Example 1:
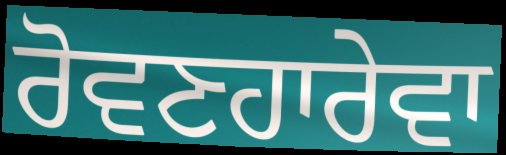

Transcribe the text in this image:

ਰੋਵਣਹਾਰੇਵਾ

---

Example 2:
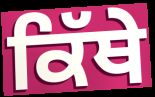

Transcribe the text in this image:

ਕਿੱਥੇ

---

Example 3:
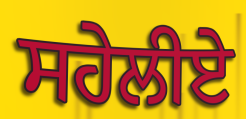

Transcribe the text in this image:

ਸਹੇਲੀਏ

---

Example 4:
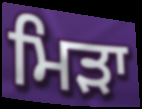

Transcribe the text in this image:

ਮਿੜਾ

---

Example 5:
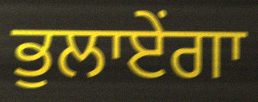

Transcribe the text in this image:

ਭੁਲਾਏਂਗਾ